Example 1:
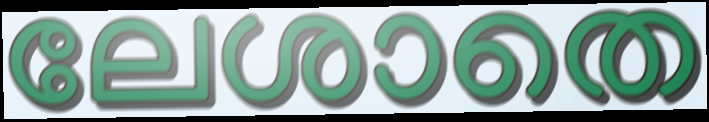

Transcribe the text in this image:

ലേശാതെ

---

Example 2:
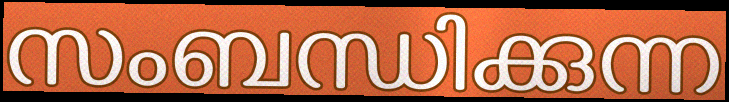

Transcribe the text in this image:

സംബന്ധിക്കുന്ന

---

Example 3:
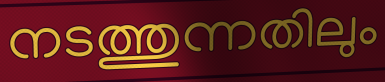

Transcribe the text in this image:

നടത്തുന്നതിലും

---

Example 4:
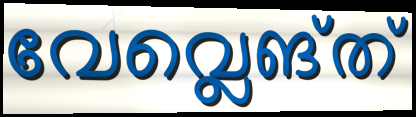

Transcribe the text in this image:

വേവ്ലെങ്ത്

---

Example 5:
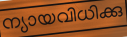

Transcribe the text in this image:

ന്യായവിധിക്കു